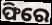
ଫିରେ